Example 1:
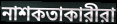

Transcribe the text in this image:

নাশকতাকারীরা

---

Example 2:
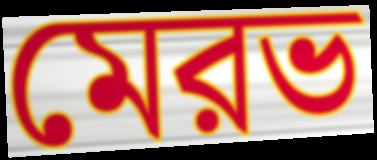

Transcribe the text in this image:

মেরভ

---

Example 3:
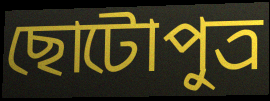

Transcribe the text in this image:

ছোটোপুত্র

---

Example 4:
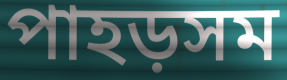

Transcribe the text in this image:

পাহড়সম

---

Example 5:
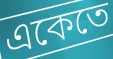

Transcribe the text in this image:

একেতে